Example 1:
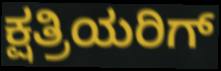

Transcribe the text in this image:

ಕ್ಷತ್ರಿಯರಿಗ್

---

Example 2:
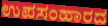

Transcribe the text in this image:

ಉಪಸಂಹಾರದ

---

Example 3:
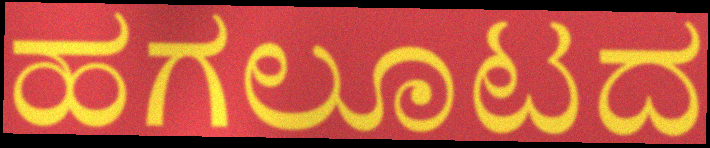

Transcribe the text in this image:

ಹಗಲೂಟದ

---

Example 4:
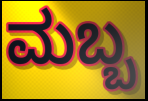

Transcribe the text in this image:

ಮಬ್ಬ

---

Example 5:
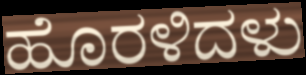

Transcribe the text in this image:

ಹೊರಳಿದಳು